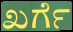
ಖರ್ಗೆ